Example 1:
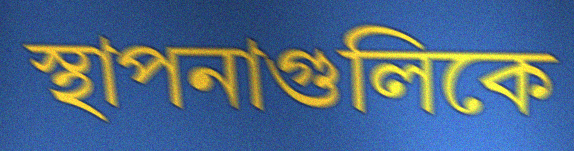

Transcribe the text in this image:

স্থাপনাগুলিকে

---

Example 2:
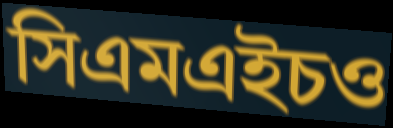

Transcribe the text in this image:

সিএমএইচও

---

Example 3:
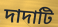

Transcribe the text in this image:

দাদাটি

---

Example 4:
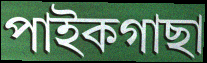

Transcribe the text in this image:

পাইকগাছা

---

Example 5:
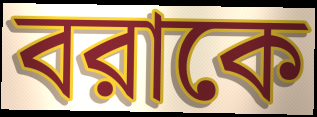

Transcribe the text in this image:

বরাকে